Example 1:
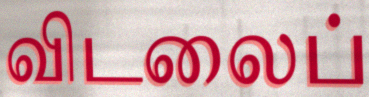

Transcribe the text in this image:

விடலைப்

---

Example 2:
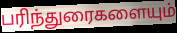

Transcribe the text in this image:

பரிந்துரைகளையும்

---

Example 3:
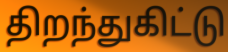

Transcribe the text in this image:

திறந்துகிட்டு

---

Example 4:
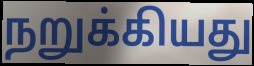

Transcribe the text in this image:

நறுக்கியது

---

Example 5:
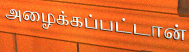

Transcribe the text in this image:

அழைக்கப்பட்டான்